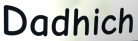
Dadhich